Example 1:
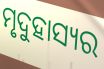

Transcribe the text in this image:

ମୃଦୁହାସ୍ୟର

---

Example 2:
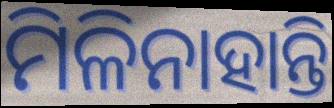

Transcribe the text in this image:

ମିଳିନାହାନ୍ତି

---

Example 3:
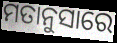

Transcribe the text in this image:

ମତାନୁସାରେ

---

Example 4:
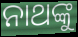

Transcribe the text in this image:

ନାଥଙ୍କୁ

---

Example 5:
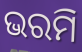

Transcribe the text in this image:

ଭରମି